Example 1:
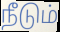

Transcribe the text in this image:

நீடும்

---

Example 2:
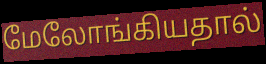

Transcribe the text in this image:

மேலோங்கியதால்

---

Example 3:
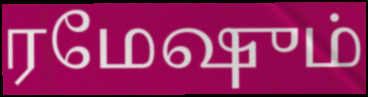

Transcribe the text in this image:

ரமேஷும்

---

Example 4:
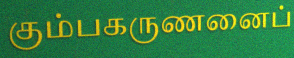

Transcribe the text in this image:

கும்பகருணனைப்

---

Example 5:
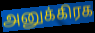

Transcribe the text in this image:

அனுக்கிரக